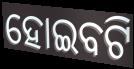
ହୋଇବଟି